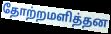
தோற்றமளித்தன